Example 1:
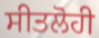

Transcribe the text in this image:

ਸੀਤਲੋਹੀ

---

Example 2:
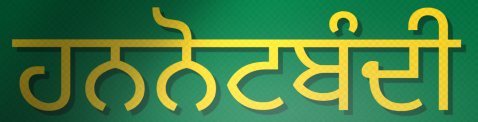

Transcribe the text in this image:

ਹਨਨੋਟਬੰਦੀ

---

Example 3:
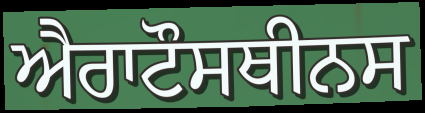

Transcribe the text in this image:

ਐਰਾਟੌਸਥੀਨਸ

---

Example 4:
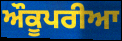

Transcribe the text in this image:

ਔਕੂਪਰੀਆ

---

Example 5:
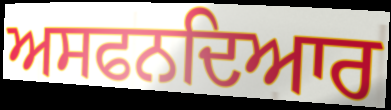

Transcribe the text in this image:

ਅਸਫਨਦਿਆਰ